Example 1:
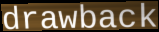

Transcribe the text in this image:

drawback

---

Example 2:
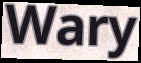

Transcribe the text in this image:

Wary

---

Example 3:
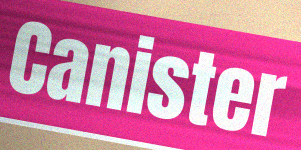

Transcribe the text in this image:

Canister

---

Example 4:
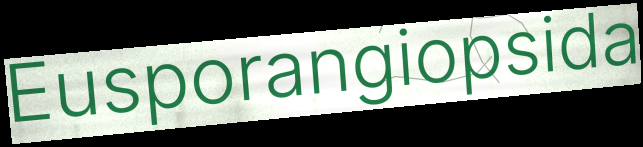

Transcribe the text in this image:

Eusporangiopsida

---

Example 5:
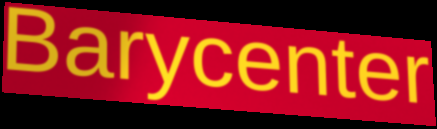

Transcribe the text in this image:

Barycenter